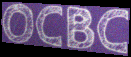
OCBC